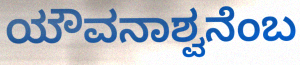
ಯೌವನಾಶ್ವನೆಂಬ